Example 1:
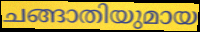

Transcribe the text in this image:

ചങ്ങാതിയുമായ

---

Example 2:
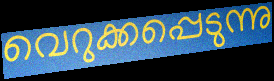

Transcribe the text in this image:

വെറുക്കപ്പെടുന്നു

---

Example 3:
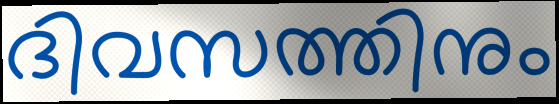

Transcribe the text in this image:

ദിവസത്തിനും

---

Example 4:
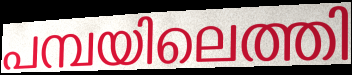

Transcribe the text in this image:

പമ്പയിലെത്തി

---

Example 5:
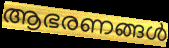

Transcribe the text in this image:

ആഭരണങ്ങൾ